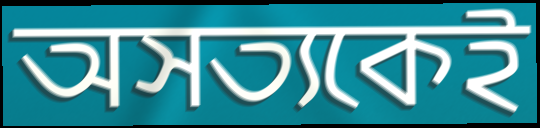
অসত্যকেই